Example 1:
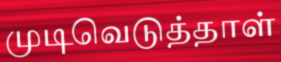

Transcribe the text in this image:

முடிவெடுத்தாள்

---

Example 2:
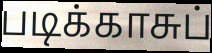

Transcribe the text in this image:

படிக்காசுப்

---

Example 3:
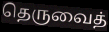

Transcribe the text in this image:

தெருவைத்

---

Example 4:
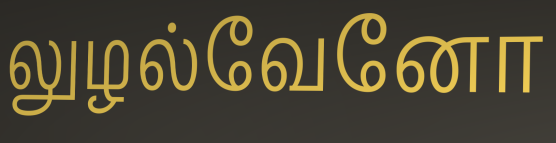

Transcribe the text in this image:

லுழல்வேனோ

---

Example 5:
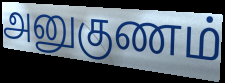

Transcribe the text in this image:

அனுகுணம்